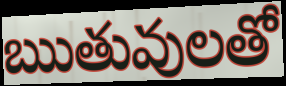
ఋతువులతో